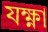
যক্ষ্ণা